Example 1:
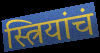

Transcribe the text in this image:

स्त्रियांचं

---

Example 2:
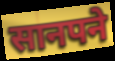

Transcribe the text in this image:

सानपने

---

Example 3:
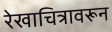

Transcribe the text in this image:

रेखाचित्रावरून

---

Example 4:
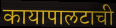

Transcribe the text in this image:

कायापालटाची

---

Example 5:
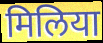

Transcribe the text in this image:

मिलिया